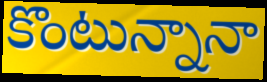
కొంటున్నానా